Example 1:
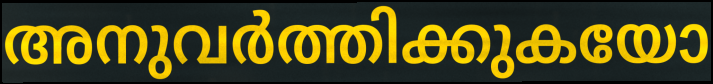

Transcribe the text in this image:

അനുവർത്തിക്കുകയോ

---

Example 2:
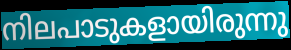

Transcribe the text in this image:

നിലപാടുകളായിരുന്നു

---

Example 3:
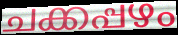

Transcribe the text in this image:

ചക്കപ്പഴം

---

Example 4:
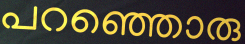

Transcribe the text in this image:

പറഞ്ഞൊരു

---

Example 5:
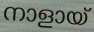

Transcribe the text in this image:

നാളായ്